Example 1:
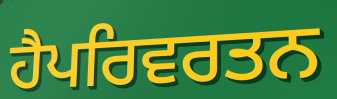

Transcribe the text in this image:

ਹੈਪਰਿਵਰਤਨ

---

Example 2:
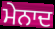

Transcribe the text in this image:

ਮੇਨਾਦ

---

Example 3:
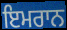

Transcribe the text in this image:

ਇਮਰਾਨ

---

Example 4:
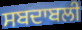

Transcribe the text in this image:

ਸਬਦਾਬਲੀ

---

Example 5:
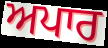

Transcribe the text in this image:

ਅਪਾਰ